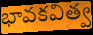
భావకవిత్వ